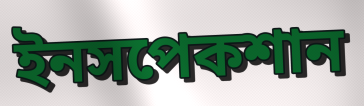
ইনসপেকশান